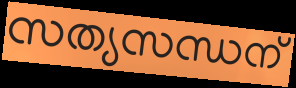
സത്യസന്ധന്